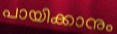
പായിക്കാനും